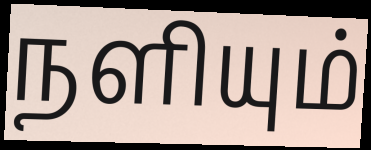
நளியும்